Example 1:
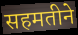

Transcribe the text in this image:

सहमतीने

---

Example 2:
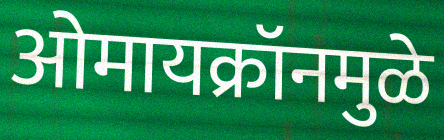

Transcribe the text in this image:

ओमायक्रॉनमुळे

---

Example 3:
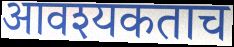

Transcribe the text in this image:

आवश्यकताच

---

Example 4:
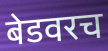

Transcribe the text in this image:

बेडवरच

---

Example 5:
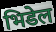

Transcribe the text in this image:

भिडेल